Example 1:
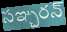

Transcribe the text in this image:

సఞ్చరన్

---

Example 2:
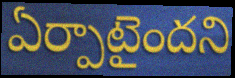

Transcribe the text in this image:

ఏర్పాటైందని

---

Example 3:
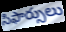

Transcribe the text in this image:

సిఫార్సులు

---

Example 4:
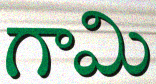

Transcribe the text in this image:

గామి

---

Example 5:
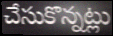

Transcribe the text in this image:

చేసుకొన్నట్లు